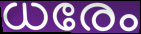
ധരേം